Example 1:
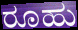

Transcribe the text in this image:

ರೂಹು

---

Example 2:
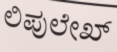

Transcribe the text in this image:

ಲಿಪುಲೇಖ್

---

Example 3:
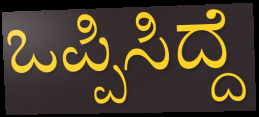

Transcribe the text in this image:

ಒಪ್ಪಿಸಿದ್ದೆ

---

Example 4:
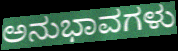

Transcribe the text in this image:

ಅನುಭಾವಗಳು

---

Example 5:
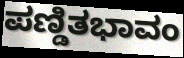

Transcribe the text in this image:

ಪಣ್ಡಿತಭಾವಂ